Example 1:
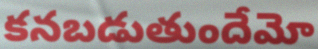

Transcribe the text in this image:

కనబడుతుందేమో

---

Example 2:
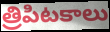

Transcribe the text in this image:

త్రిపిటకాలు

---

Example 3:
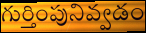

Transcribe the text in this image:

గుర్తింపునివ్వడం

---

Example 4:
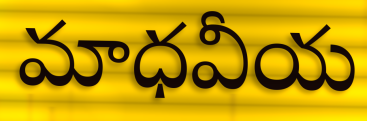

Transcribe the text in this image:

మాధవీయ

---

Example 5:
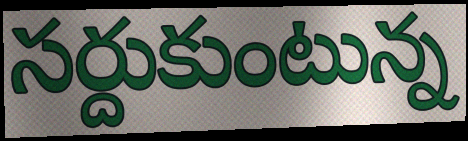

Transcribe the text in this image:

సర్దుకుంటున్న